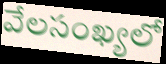
వేలసంఖ్యలో